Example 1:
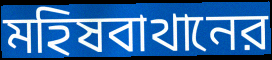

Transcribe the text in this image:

মহিষবাথানের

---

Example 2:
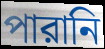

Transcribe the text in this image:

পারানি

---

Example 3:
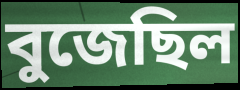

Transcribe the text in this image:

বুজেছিল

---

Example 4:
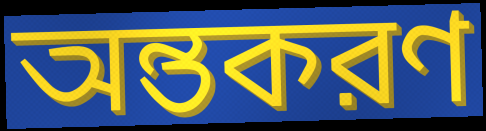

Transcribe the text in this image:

অন্তকরণ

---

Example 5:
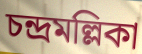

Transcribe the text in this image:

চন্দ্রমল্লিকা